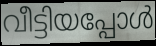
വീട്ടിയപ്പോൾ